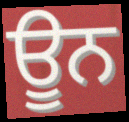
ਊਨ